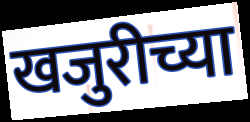
खजुरीच्या